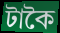
টাকৈ